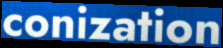
conization